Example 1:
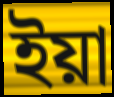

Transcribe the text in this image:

ইয়া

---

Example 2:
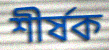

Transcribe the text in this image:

শীৰ্ষক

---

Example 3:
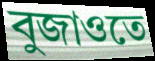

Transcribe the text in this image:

বুজাওতে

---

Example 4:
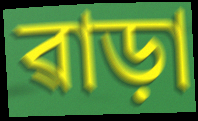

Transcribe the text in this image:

ৱাড়া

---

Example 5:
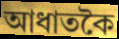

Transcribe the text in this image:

আধাতকৈ